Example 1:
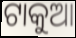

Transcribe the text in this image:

ଟାକୁଆ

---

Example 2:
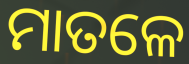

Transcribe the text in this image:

ମାତଳେ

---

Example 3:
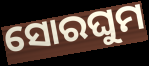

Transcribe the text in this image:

ସୋରଘୁମ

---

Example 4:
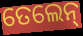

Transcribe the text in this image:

ତେଲେନ୍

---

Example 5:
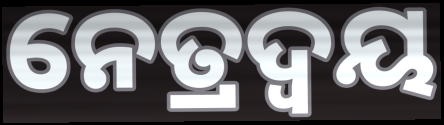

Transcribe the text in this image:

ନେତ୍ରଦ୍ଵୟ